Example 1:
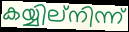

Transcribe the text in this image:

കയ്യില്നിന്ന്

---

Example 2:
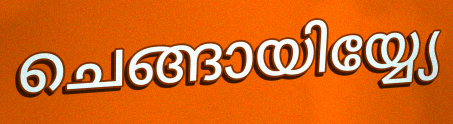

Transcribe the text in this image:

ചെങ്ങായിയ്യ്യേ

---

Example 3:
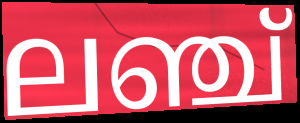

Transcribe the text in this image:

ലഞ്ച്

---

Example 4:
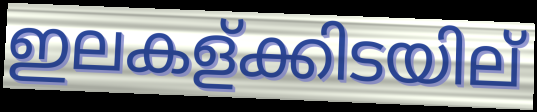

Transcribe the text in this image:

ഇലകള്ക്കിടയില്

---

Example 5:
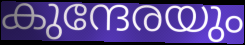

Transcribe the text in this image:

കുന്ദേരയും